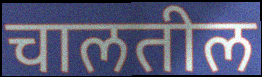
चालतील